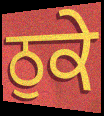
ਠੁਕੇ